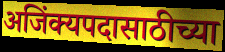
अजिंक्यपदासाठीच्या